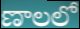
ణాలలో